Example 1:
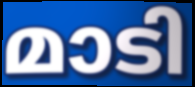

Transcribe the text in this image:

മാടി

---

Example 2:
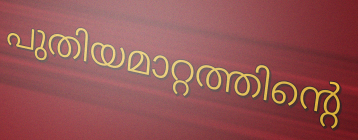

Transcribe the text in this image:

പുതിയമാറ്റത്തിന്റെ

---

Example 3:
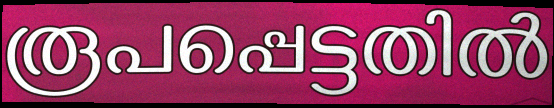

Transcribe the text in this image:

രൂപപ്പെട്ടതിൽ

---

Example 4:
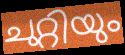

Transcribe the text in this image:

ചുറ്റിയും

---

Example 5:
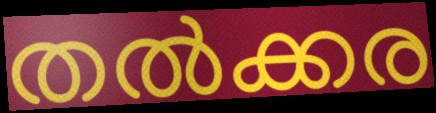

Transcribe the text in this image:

തൽക്കര